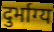
दुर्भाग्य